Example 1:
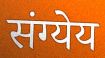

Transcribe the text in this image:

संग्येय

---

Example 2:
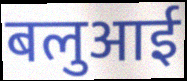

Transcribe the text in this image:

बलुआई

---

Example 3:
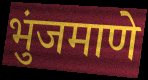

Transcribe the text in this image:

भुंजमाणे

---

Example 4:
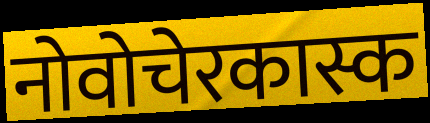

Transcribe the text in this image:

नोवोचेरकास्क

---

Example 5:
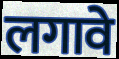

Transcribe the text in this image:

लगावे